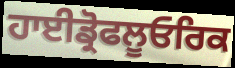
ਹਾਈਡ੍ਰੋਫਲੂਓਰਿਕ